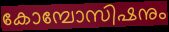
കോമ്പോസിഷനും